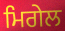
ਮਿਗੇਲ